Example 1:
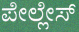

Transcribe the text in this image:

ಪೇಲ್ಲೇಸ್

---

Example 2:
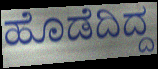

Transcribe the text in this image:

ಹೊಡೆದಿದ್ದ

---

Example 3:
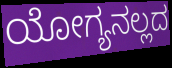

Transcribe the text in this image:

ಯೋಗ್ಯನಲ್ಲದ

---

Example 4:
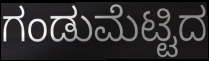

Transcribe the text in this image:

ಗಂಡುಮೆಟ್ಟಿದ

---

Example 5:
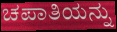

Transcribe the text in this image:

ಚಪಾತಿಯನ್ನು